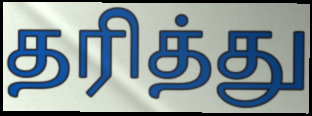
தரித்து